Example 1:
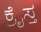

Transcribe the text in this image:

ಕ್ರೈಸ್ತ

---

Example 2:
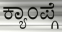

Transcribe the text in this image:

ಕ್ಯಾಂಪ್ಗೆ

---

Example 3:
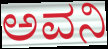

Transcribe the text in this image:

ಅವನಿ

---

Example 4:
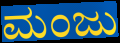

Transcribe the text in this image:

ಮಂಜು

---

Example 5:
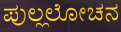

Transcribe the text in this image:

ಪುಲ್ಲಲೋಚನ